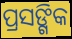
ପ୍ରସଙ୍ଗିକ